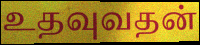
உதவுவதன்